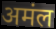
अमंल